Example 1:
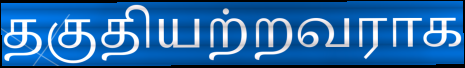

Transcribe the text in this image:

தகுதியற்றவராக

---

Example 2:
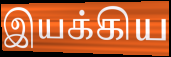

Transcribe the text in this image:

இயக்கிய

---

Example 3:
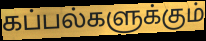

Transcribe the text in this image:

கப்பல்களுக்கும்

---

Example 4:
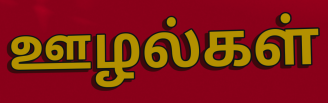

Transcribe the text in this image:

ஊழல்கள்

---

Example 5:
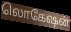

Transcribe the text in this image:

லொகேஷன்